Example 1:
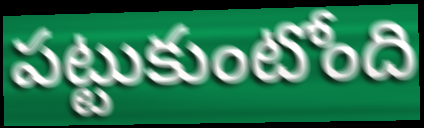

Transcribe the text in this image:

పట్టుకుంటోంది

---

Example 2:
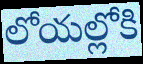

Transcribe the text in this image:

లోయల్లోకి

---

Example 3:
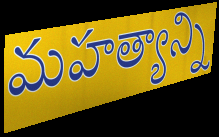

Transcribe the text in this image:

మహత్యాన్ని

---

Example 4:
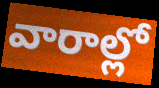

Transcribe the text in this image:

వారాల్లో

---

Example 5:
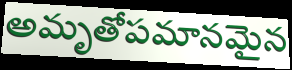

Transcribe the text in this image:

అమృతోపమానమైన